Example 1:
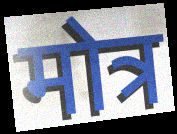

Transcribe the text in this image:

मोत्र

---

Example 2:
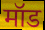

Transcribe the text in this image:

मॉड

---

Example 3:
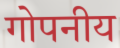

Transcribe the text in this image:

गोपनीय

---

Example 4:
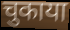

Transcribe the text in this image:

चुकाया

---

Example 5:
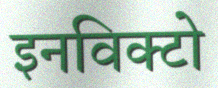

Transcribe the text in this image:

इनविक्टो